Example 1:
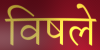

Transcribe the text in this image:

विषले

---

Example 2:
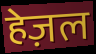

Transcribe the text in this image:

हेज़ल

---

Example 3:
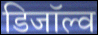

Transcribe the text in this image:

डिजॉल्व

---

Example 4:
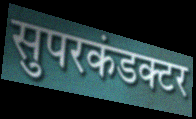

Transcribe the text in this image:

सुपरकंडक्टर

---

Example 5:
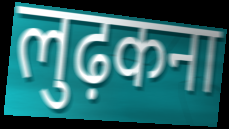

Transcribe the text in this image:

लुढ़कना